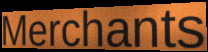
Merchants